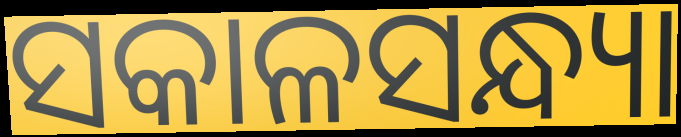
ସକାଳସନ୍ଧ୍ୟା